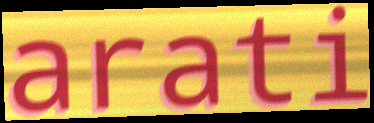
arati